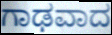
ಗಾಢವಾದ